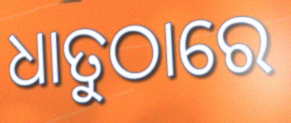
ଧାତୁଠାରେ